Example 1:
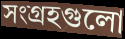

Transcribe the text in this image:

সংগ্রহগুলো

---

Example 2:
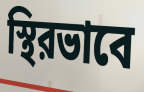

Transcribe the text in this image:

স্থিরভাবে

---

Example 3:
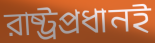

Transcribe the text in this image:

রাষ্ট্রপ্রধানই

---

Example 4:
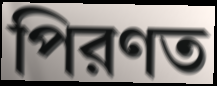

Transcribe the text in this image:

পিরণত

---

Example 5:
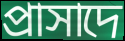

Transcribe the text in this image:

প্রাসাদে